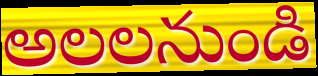
అలలనుండి